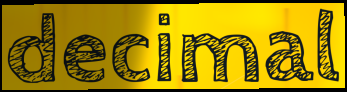
decimal